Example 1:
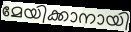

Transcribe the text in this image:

മേയിക്കാനായി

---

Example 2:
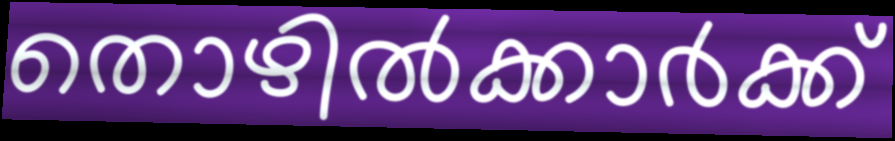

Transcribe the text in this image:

തൊഴിൽക്കാർക്ക്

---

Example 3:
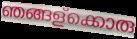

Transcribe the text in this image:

ഞങ്ങള്ക്കൊരു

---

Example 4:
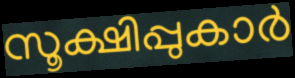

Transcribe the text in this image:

സൂക്ഷിപ്പുകാർ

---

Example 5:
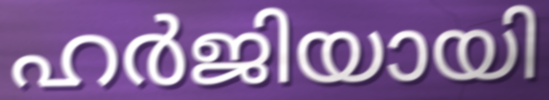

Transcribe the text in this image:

ഹർജിയായി